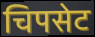
चिपसेट